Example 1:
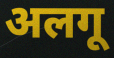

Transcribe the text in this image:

अलगू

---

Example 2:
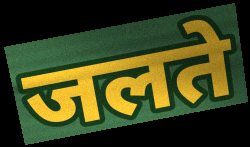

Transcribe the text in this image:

जलते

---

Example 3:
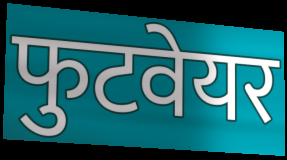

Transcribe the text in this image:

फुटवेयर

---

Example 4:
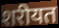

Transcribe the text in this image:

शरीयत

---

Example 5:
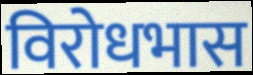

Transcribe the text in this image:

विरोधभास